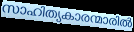
സാഹിത്യകാരന്മാരിൽ